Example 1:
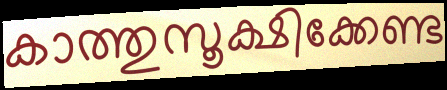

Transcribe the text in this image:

കാത്തുസൂക്ഷിക്കേണ്ട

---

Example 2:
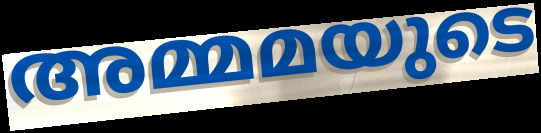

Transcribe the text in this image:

അമ്മമയുടെ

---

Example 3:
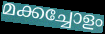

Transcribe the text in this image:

മക്കച്ചോളം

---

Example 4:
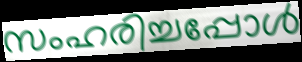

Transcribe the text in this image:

സംഹരിച്ചപ്പോൾ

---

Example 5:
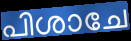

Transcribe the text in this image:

പിശാചേ